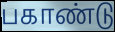
பகாண்டு